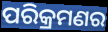
ପରିକ୍ରମଣର